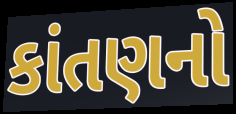
કાંતણનો